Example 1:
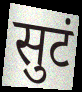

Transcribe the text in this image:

सुटं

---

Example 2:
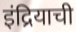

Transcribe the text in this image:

इंद्रियाची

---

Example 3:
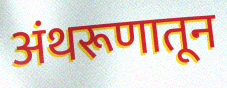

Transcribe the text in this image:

अंथरूणातून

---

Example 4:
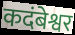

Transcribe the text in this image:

कदंबेश्वर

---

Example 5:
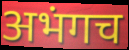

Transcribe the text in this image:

अभंगच